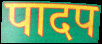
पादप